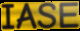
IASE